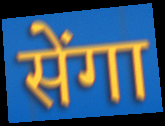
सेंगा